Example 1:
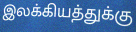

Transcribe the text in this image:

இலக்கியத்துக்கு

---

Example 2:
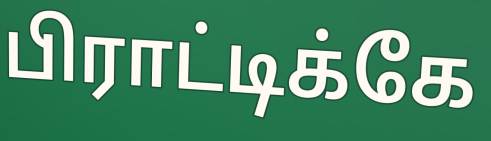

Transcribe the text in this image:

பிராட்டிக்கே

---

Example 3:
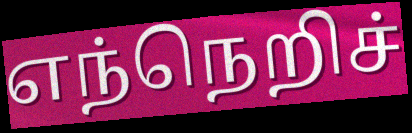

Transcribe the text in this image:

எந்நெறிச்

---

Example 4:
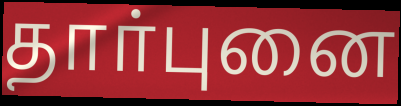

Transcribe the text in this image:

தார்புனை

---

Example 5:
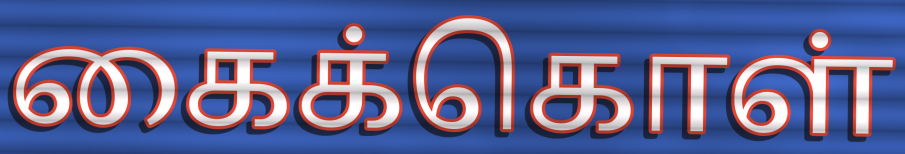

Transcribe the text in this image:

கைக்கொள்